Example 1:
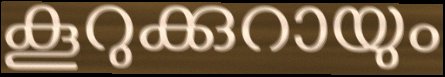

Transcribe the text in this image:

കൂറുക്കുറായും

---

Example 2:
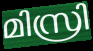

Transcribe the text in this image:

മിസ്രി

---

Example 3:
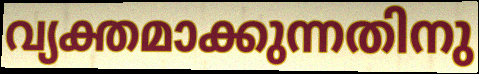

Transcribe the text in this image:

വ്യക്തമാക്കുന്നതിനു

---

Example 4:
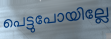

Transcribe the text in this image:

പെട്ടുപോയില്ലേ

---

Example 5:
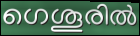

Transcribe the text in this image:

ഗെശൂരിൽ